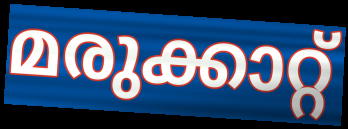
മരുക്കാറ്റ്